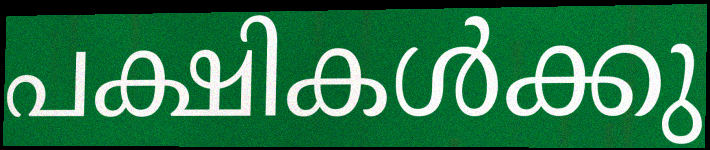
പക്ഷികൾക്കു